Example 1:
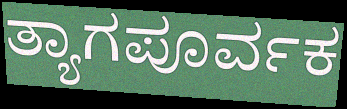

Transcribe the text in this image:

ತ್ಯಾಗಪೂರ್ವಕ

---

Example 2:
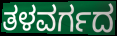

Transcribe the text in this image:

ತಳವರ್ಗದ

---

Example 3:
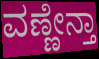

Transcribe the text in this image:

ವಣ್ಣೇನ್ತಾ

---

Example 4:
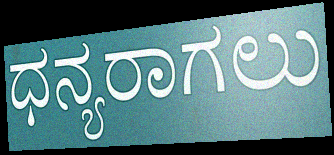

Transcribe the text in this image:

ಧನ್ಯರಾಗಲು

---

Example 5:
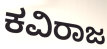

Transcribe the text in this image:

ಕವಿರಾಜ